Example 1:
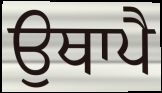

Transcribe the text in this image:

ਉਥਾਪੈ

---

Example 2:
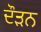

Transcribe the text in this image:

ਦੌਡ਼ਨ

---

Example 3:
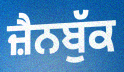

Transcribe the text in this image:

ਜ਼ੈਨਬੁੱਕ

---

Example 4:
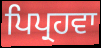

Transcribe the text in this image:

ਪਿਪ੍ਰਹਵਾ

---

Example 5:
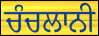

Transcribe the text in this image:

ਚੰਚਲਾਨੀ